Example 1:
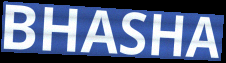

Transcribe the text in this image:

BHASHA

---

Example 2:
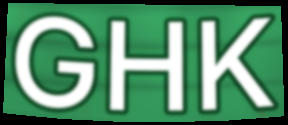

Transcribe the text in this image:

GHK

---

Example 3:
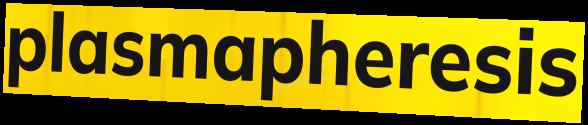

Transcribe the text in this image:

plasmapheresis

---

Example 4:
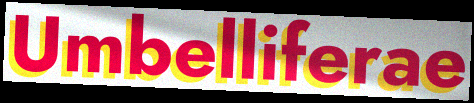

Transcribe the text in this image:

Umbelliferae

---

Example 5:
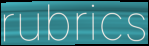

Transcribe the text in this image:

rubrics